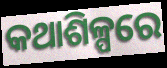
କଥାଶିଳ୍ପରେ